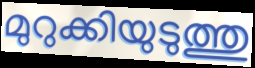
മുറുക്കിയുടുത്തു